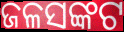
ଜଳସଙ୍କଟ